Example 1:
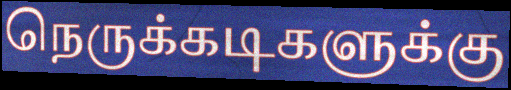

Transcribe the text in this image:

நெருக்கடிகளுக்கு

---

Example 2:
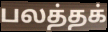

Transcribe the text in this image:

பலத்தக்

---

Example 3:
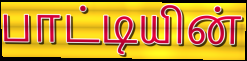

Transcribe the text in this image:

பாட்டியின்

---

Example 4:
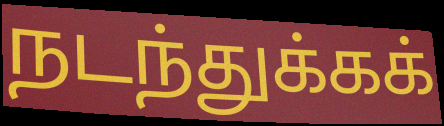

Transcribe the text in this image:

நடந்துக்கக்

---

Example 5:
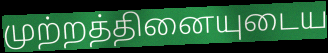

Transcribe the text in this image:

முற்றத்தினையுடைய